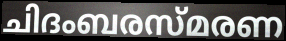
ചിദംബരസ്മരണ